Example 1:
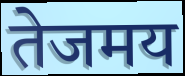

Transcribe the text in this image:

तेजमय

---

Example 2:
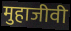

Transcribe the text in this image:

मुहाजीवी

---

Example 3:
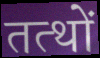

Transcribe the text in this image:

तत्थों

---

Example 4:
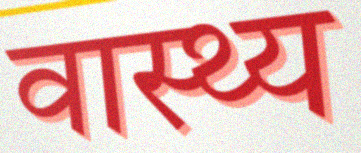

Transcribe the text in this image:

वास्थ्य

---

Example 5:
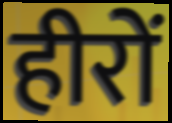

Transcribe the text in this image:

हीरों